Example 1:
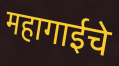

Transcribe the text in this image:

महागाईचे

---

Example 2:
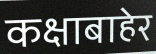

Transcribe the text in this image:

कक्षाबाहेर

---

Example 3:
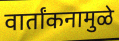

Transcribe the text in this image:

वार्तांकनामुळे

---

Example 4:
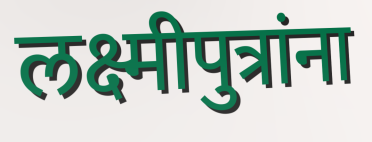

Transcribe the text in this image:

लक्ष्मीपुत्रांना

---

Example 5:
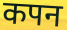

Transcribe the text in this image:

कपन